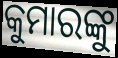
କୁମାରଙ୍କୁ